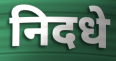
निदधे